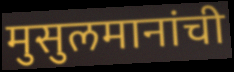
मुसुलमानांची